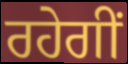
ਰਹੇਗੀਂ